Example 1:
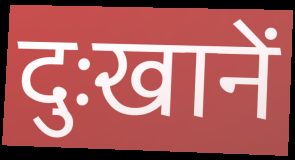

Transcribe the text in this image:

दुःखानें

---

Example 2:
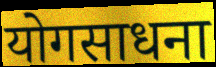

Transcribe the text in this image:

योगसाधना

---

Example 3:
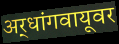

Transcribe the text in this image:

अर्धांगवायूवर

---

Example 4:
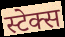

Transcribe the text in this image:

स्टेक्स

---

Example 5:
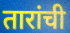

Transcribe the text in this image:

तारांची